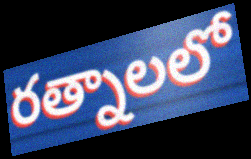
రత్నాలలో